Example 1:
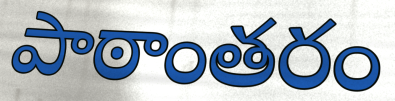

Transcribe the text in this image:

పాఠాంతరం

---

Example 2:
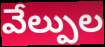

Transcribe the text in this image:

వేల్పుల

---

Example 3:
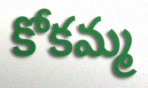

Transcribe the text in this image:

కోకమ్మ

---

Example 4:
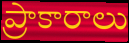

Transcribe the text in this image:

ప్రాకారాలు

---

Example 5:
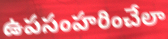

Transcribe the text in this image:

ఉపసంహరించేలా